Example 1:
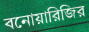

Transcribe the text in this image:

বনোয়ারিজির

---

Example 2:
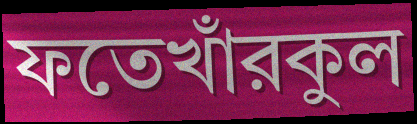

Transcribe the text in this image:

ফতেখাঁরকুল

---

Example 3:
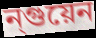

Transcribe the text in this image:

ন্গুয়েন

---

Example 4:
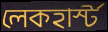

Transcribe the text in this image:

লেকহার্স্ট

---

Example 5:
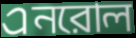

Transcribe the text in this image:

এনরোল